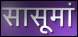
सासूमां